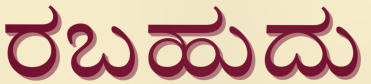
ರಬಹುದು